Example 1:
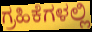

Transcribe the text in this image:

ಗ್ರಹಿಕೆಗಳಲ್ಲಿ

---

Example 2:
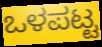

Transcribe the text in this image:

ಒಳಪಟ್ಟ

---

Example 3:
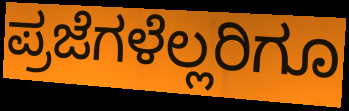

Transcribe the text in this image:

ಪ್ರಜೆಗಳೆಲ್ಲರಿಗೂ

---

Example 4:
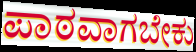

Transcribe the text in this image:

ಪಾಠವಾಗಬೇಕು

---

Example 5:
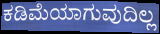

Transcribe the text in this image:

ಕಡಿಮೆಯಾಗುವುದಿಲ್ಲ